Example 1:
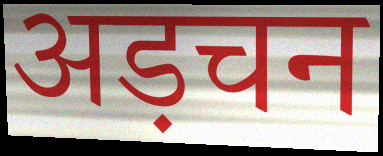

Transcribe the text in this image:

अड़चन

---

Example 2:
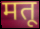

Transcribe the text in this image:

मतू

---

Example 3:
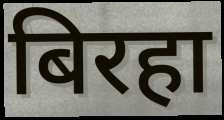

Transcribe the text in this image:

बिरहा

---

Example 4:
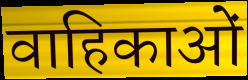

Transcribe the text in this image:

वाहिकाओं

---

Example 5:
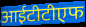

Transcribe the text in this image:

आईटीटीएफ